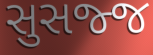
સુસજ્જ